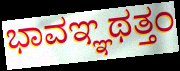
ಭಾವಞ್ಞಥತ್ತಂ